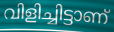
വിളിച്ചിട്ടാണ്